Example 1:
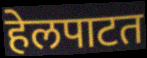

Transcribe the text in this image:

हेलपाटत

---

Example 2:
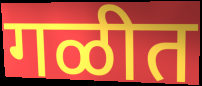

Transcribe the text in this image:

गळीत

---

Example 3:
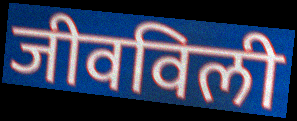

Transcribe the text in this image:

जीवविली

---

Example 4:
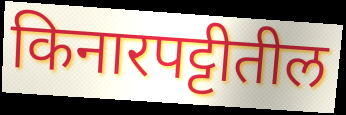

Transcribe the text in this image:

किनारपट्टीतील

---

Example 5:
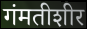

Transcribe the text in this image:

गंमतीशीर